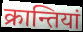
क्रान्तियां